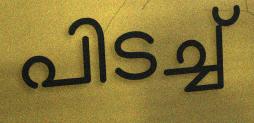
പിടച്ച്